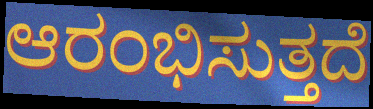
ಆರಂಭಿಸುತ್ತದೆ